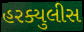
હરક્યુલીસ